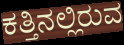
ಕತ್ತಿನಲ್ಲಿರುವ